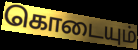
கொடையும்